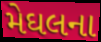
મેઘલના